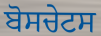
ਬੋਸਚੇਟਸ